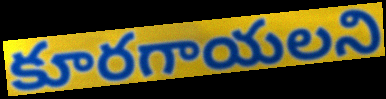
కూరగాయలని